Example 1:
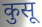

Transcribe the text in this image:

कुसू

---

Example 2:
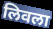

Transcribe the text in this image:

लिवला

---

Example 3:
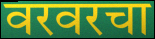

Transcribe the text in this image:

वरवरचा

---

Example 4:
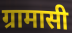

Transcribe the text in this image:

ग्रामासी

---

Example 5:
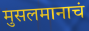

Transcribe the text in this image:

मुसलमानाचं